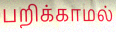
பறிக்காமல்